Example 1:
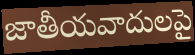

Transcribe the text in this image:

జాతీయవాదులపై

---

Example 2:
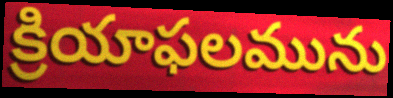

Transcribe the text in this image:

క్రియాఫలమును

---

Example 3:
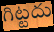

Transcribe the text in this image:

గిట్టదు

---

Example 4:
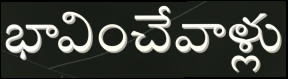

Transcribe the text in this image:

భావించేవాళ్లు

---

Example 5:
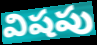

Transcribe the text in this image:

విషపు